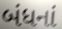
બંધનાં